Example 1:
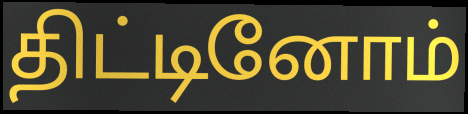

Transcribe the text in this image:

திட்டினோம்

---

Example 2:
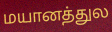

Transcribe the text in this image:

மயானத்துல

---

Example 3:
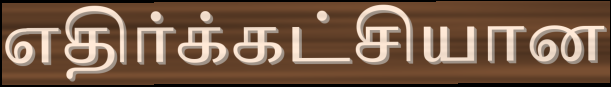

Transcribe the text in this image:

எதிர்க்கட்சியான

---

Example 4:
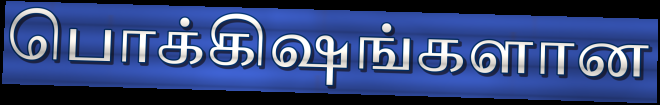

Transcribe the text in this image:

பொக்கிஷங்களான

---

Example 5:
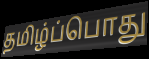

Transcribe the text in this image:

தமிழ்ப்பொது